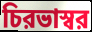
চিরভাস্বর